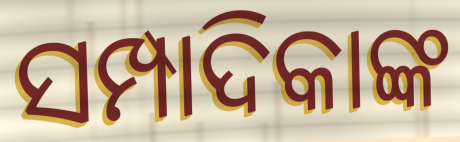
ସମ୍ପାଦିକାଙ୍କ